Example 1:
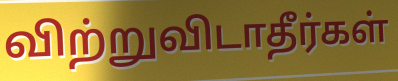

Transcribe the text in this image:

விற்றுவிடாதீர்கள்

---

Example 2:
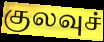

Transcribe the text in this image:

குலவுச்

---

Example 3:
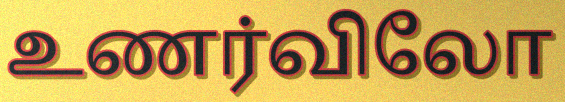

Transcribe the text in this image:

உணர்விலோ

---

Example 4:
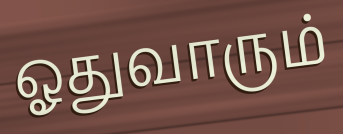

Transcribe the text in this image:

ஓதுவாரும்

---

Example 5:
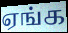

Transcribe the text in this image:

ஏங்க